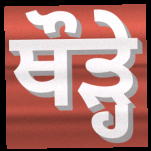
ਥੌੜ੍ਹੇ